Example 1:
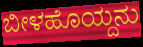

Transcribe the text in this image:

ಬೀಳಹೊಯ್ದನು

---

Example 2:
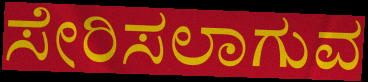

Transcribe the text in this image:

ಸೇರಿಸಲಾಗುವ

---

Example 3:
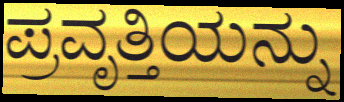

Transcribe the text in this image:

ಪ್ರವೃತ್ತಿಯನ್ನು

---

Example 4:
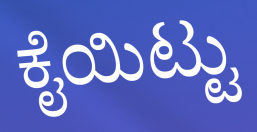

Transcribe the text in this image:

ಕೈಯಿಟ್ಟು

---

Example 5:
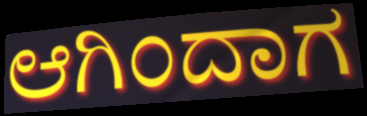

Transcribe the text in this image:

ಆಗಿಂದಾಗ